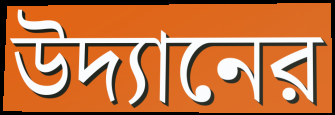
উদ্যানের